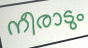
നീരാടും